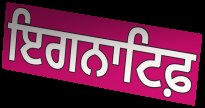
ਇਗਨਾਟਿਫ਼